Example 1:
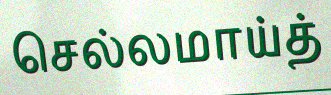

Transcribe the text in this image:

செல்லமாய்த்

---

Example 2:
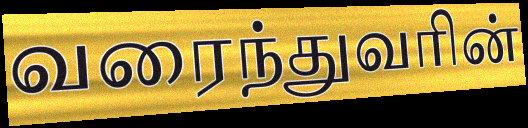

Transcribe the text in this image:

வரைந்துவரின்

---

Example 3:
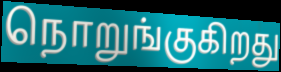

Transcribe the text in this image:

நொறுங்குகிறது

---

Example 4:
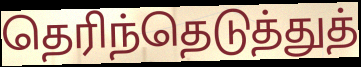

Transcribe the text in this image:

தெரிந்தெடுத்துத்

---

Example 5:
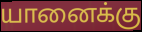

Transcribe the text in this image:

யானைக்கு